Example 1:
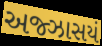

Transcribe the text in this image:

અજ્ઝાસયં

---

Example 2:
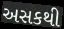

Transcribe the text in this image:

અસકથી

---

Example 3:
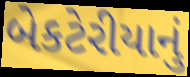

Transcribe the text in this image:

બેકટેરીયાનું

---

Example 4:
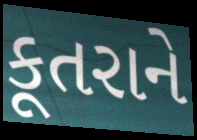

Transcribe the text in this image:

કૂતરાને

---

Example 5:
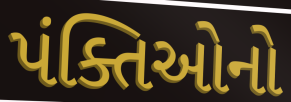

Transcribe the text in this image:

પંક્તિઓનો